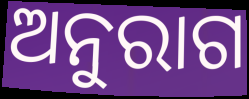
ଅନୁରାଗ